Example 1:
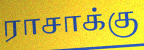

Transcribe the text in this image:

ராசாக்கு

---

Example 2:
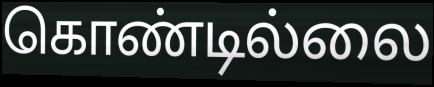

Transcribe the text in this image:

கொண்டில்லை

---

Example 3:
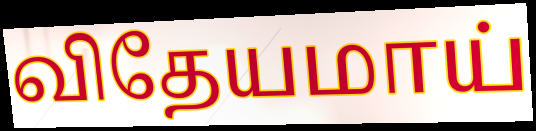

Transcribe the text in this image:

விதேயமாய்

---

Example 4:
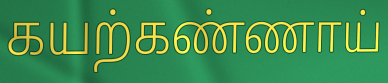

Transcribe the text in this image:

கயற்கண்ணாய்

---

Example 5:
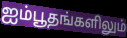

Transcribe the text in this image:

ஐம்பூதங்களிலும்